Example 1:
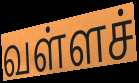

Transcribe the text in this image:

வள்ளச்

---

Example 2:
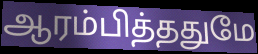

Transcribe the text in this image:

ஆரம்பித்ததுமே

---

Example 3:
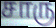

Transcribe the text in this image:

சாரு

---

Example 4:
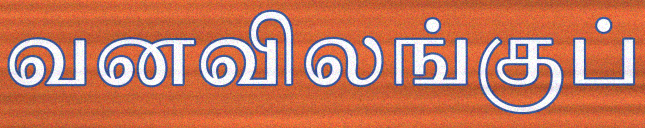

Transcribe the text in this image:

வனவிலங்குப்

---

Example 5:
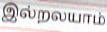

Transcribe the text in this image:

இல்றலயாம்